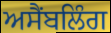
ਅਸੈਂਬਲਿੰਗ